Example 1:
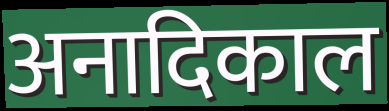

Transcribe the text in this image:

अनादिकाल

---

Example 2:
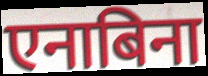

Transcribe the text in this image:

एनाबिना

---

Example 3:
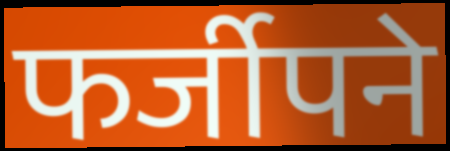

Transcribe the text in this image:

फर्जीपने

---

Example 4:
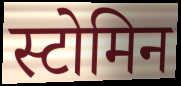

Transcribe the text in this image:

स्टोमिन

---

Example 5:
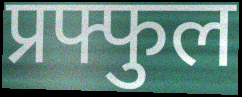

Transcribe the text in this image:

प्रफ्फुल